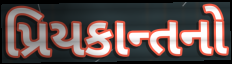
પ્રિયકાન્તનો